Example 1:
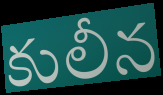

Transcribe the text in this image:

కులీన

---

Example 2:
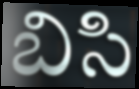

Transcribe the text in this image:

బిసి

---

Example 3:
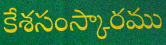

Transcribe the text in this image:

కేశసంస్కారము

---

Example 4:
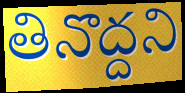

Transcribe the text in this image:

తినొద్దని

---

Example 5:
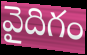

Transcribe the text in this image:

వైదిగం